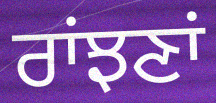
ਰਾਂਝਣਾਂ